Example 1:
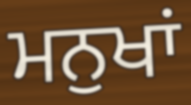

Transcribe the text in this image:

ਮਨੁਖਾਂ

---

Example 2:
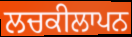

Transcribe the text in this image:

ਲਚਕੀਲਾਪਨ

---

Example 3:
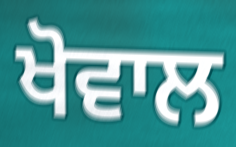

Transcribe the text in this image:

ਖੋਵਾਲ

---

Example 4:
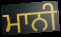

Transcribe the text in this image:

ਮਾਨੀ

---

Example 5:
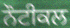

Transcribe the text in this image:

ਨੌਟੀਕਲ